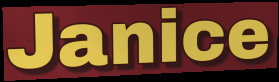
Janice